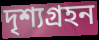
দৃশ্যগ্ৰহন